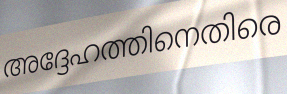
അദ്ദേഹത്തിനെതിരെ